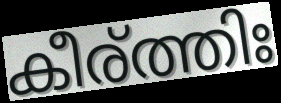
കീര്ത്തിഃ